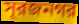
সূরজনগর